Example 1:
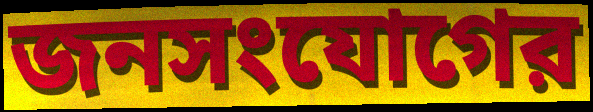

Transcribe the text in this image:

জনসংযোগের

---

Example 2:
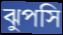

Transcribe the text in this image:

ঝুপসি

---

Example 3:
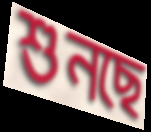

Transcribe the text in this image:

শুনছে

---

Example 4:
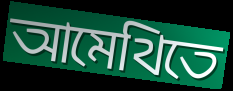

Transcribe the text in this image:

আমেথিতে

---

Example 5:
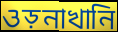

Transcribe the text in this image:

ওড়্নাখানি